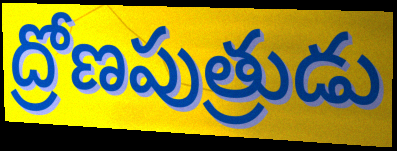
ద్రోణపుత్రుడు